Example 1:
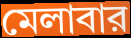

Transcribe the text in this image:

মেলাবার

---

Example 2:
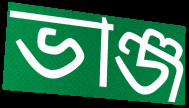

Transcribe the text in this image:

ভাঞ্জ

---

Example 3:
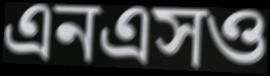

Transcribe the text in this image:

এনএসও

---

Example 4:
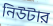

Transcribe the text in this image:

নিউটার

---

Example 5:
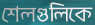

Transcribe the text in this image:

শেলগুলিকে